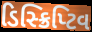
ડિસ્ક્રિપ્ટિવ